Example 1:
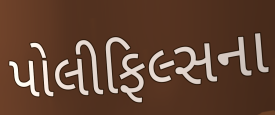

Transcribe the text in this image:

પોલીફિલ્સના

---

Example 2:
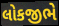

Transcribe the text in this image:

લોકજીભે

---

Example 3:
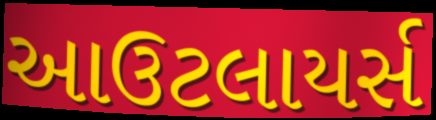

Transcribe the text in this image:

આઉટલાયર્સ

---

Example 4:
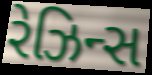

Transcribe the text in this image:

રેઝિન્સ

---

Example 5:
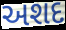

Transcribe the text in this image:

અશદ